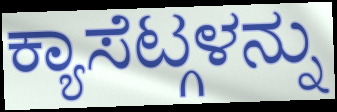
ಕ್ಯಾಸೆಟ್ಗಳನ್ನು